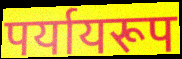
पर्यायरूप